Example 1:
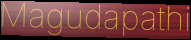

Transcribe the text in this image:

Magudapathi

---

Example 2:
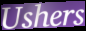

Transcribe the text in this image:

Ushers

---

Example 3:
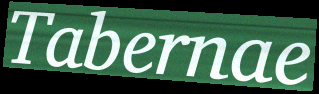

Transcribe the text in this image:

Tabernae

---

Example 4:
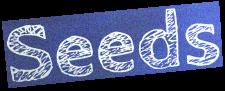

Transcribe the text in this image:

Seeds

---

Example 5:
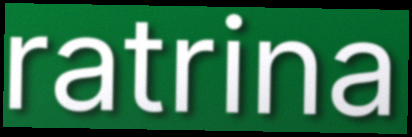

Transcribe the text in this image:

ratrina